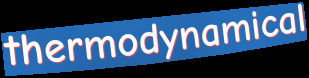
thermodynamical